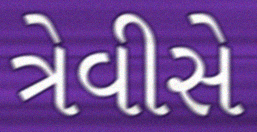
ત્રેવીસે